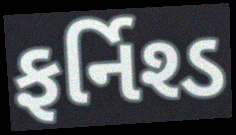
ફર્નિશ્ડ